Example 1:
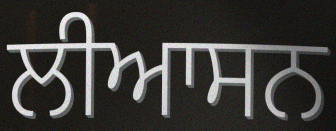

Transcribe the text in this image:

ਲੀਆਸਨ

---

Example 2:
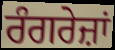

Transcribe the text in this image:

ਰੰਗਰੇਜ਼ਾਂ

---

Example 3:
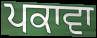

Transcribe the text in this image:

ਪਕਾਵਾ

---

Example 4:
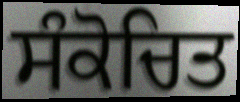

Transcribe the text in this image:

ਸੰਕੋਚਿਤ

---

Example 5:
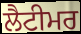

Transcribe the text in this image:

ਲੈਟੀਮਰ